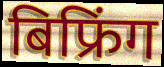
बिफ्रिंग